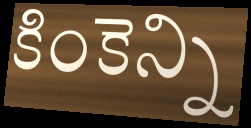
కింకెన్ని